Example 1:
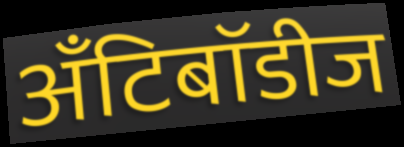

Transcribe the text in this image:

अँटिबॉडीज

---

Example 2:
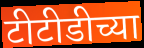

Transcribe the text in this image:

टीटीडीच्या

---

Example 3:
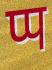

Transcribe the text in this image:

प्प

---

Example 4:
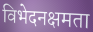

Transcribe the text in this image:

विभेदनक्षमता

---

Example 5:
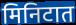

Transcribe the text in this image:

मिनिटात